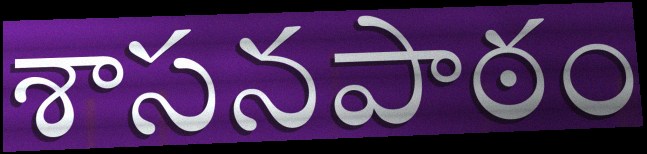
శాసనపాఠం